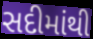
સદીમાંથી